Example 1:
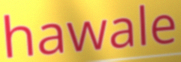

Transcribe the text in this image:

hawale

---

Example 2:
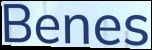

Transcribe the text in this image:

Benes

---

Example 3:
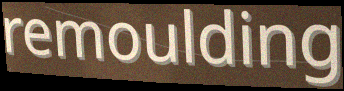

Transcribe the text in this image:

remoulding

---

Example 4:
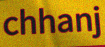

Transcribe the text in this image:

chhanj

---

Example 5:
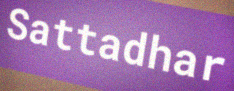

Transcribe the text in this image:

Sattadhar